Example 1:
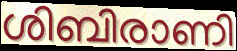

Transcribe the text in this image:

ശിബിരാണി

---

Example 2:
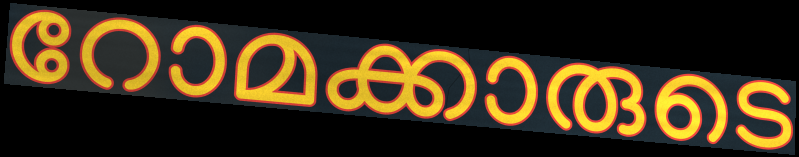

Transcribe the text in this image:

റോമക്കാരുടെ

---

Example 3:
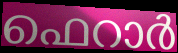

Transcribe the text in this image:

ഫെറാർ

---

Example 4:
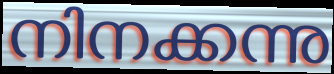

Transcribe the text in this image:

നിനക്കന്നു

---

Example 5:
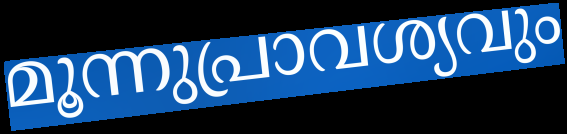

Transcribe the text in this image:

മൂന്നുപ്രാവശ്യവും